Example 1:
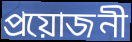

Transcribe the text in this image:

প্রয়োজনী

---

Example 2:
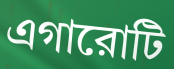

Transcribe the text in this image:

এগারোটি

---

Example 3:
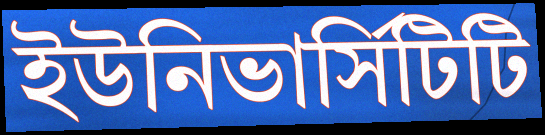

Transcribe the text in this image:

ইউনিভার্সিটিটি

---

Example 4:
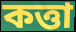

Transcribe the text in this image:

কত্তা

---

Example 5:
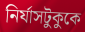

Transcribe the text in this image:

নির্যাসটুকুকে